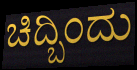
ಚಿದ್ಬಿಂದು